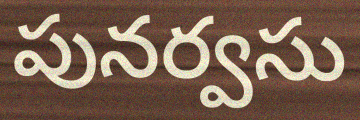
పునర్వసు